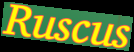
Ruscus